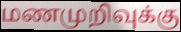
மணமுறிவுக்கு